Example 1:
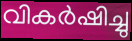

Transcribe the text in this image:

വികർഷിച്ചു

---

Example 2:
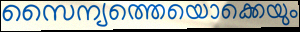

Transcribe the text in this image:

സൈന്യത്തെയൊക്കെയും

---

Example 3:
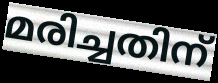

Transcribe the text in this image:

മരിച്ചതിന്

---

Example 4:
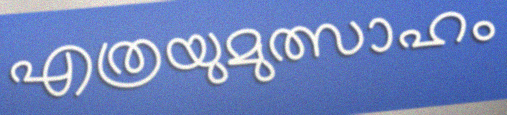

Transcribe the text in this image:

എത്രയുമുത്സാഹം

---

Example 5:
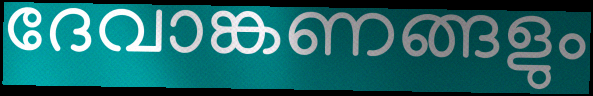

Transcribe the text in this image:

ദേവാങ്കണങ്ങളും